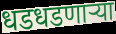
धडधडणाऱ्या